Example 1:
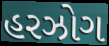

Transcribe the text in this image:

હરઝોગ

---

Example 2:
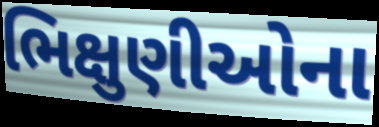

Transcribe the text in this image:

ભિક્ષુણીઓના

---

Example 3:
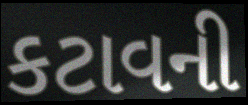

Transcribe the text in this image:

કટાવની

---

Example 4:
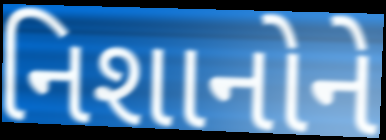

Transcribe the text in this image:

નિશાનોને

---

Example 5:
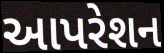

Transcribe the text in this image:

આપરેશન